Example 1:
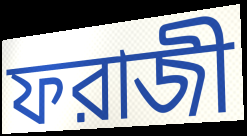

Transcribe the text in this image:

ফরাজী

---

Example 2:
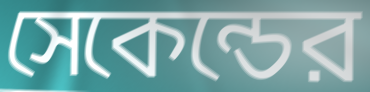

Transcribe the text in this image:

সেকেন্ডের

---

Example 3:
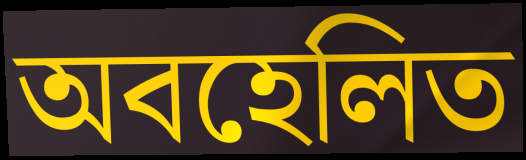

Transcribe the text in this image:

অবহেলিত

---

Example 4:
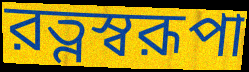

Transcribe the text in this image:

রত্নস্বরূপা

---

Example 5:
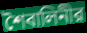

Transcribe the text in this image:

শৈবালিনীর